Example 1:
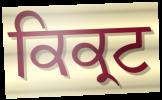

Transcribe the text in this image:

ਕਿਕ੍ਰਟ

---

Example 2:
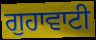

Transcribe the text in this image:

ਗੁਹਾਵਾਟੀ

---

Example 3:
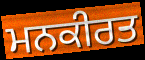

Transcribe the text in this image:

ਮਨਕੀਰਤ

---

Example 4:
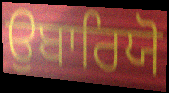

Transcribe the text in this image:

ਉਬਾਰਿਯੋ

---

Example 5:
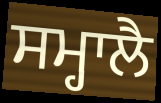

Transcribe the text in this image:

ਸਮ੍ਹ੍ਹਾਲੈ